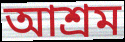
আশ্ৰম